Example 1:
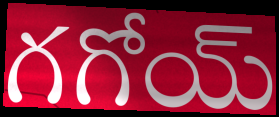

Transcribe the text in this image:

గగోయ్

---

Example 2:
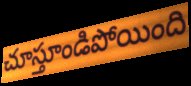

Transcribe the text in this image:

చూస్తూండిపోయింది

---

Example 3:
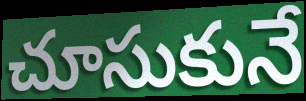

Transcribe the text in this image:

చూసుకునే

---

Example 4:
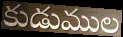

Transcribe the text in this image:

కుడుముల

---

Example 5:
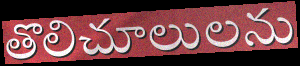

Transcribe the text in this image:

తొలిచూలులను